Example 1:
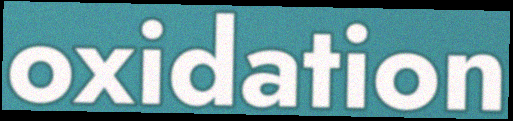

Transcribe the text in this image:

oxidation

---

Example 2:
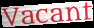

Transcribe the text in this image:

Vacant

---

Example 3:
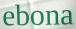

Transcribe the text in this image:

ebona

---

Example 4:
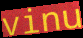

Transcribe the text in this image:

vinu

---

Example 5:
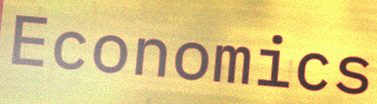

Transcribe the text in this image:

Economics